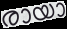
രായാ